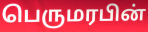
பெருமரபின்